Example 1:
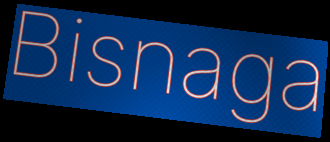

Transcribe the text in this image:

Bisnaga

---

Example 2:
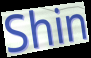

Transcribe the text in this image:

Shin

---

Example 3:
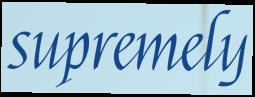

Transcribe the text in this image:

supremely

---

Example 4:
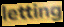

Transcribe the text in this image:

letting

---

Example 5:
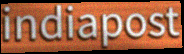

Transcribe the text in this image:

indiapost